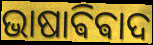
ଭାଷାଵିଵାଦ